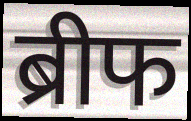
ब्रीफ